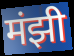
मंझी